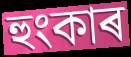
হুংকাৰ